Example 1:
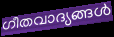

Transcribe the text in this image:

ഗീതവാദ്യങ്ങൾ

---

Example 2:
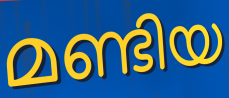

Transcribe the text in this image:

മണ്ടിയ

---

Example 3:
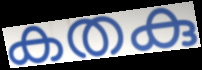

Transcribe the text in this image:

കതകു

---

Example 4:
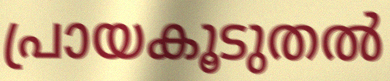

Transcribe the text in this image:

പ്രായകൂടുതൽ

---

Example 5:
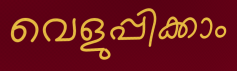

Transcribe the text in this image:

വെളുപ്പിക്കാം